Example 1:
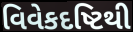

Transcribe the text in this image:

વિવેકદષ્ટિથી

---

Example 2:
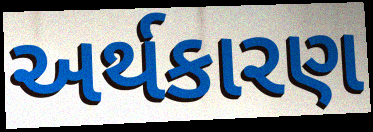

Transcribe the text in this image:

અર્થકારણ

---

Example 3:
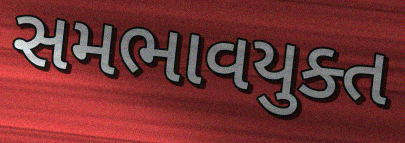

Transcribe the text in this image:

સમભાવયુક્ત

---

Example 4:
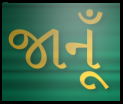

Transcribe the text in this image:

જાનૂઁ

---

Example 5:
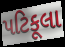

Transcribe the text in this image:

પટિકૂલા